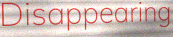
Disappearing